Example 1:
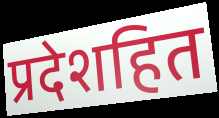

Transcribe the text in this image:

प्रदेशहित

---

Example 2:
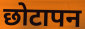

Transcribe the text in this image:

छोटापन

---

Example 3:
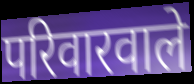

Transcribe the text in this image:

परिवारवाले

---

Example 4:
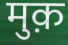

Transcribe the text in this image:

मुक़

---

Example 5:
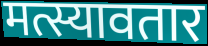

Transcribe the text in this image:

मत्स्यावतार